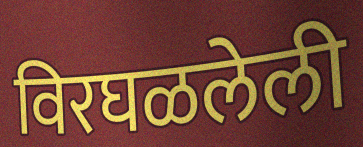
विरघळलेली